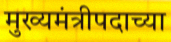
मुख्यमंत्रीपदाच्या